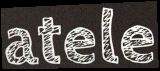
atele